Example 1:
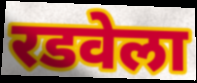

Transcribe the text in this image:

रडवेला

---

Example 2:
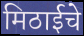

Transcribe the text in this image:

मिठाईचे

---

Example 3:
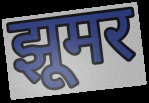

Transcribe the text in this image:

झूमर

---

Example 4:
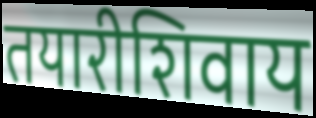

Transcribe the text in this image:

तयारीशिवाय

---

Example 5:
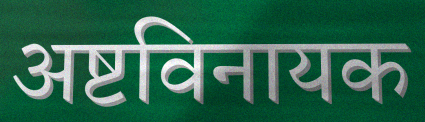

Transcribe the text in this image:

अष्टविनायक